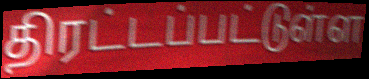
திரட்டப்பட்டுள்ள